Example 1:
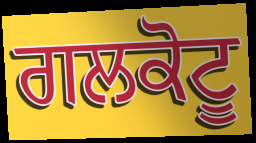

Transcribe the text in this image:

ਗਲਕੋਟੂ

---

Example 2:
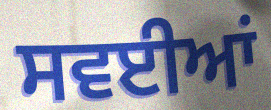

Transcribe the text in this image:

ਸਵਈਆਂ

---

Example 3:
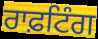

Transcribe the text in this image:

ਰਾਫ਼ਟਿੰਗ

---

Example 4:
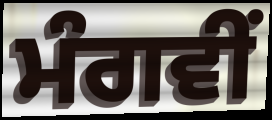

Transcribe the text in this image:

ਮੰਗਵੀਂ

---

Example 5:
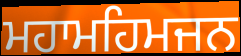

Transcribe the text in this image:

ਮਹਾਮਹਿਮਜਨ